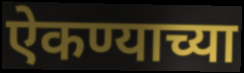
ऐकण्याच्या